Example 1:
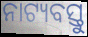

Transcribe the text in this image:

ନାଟ୍ୟବସ୍ତୁ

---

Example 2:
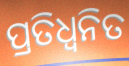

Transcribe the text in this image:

ପ୍ରତିଧ୍ଵନିତ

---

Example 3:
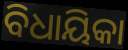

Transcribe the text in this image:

ବିଧାୟିକା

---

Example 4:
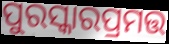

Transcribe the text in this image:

ପୁରସ୍କାରପ୍ରମତ୍ତ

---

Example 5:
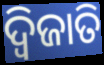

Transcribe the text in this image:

ଦ୍ୱିଜାତି